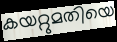
കയറ്റുമതിയെ